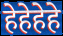
हेहेहेहे